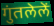
गुंतलेलें